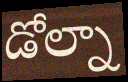
డోల్నా